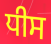
ਧੀਸ